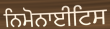
ਨਿਮੋਨਾਈਟਿਸ